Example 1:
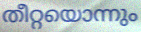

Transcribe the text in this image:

തീറ്റയൊന്നും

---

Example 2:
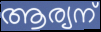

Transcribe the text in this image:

ആര്യന്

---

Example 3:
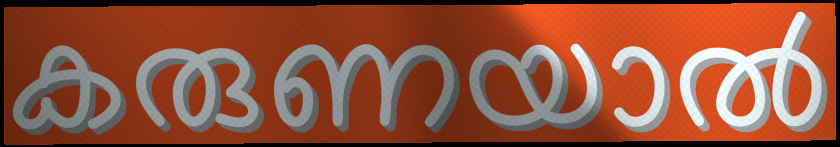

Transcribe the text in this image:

കരുണയാൽ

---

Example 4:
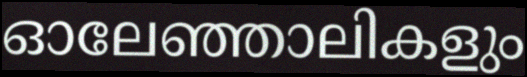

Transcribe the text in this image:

ഓലേഞ്ഞാലികളും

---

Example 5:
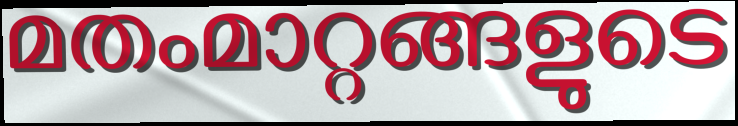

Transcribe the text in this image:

മതംമാറ്റങ്ങളുടെ